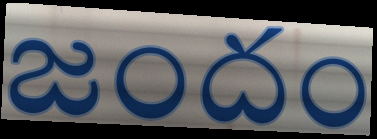
జందం